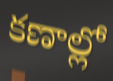
కణాల్లో